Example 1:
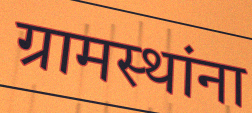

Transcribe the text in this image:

ग्रामस्थांना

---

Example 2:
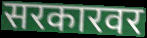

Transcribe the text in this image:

सरकारवर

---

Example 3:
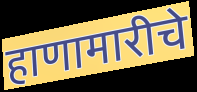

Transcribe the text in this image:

हाणामारीचे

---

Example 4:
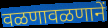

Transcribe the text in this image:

वळणावळणानें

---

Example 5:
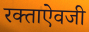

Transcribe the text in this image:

रक्ताऐवजी